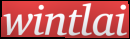
wintlai